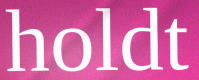
holdt